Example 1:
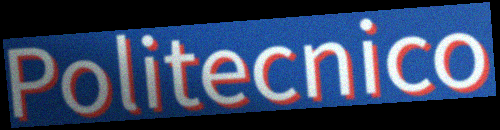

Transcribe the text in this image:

Politecnico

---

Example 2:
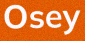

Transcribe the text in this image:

Osey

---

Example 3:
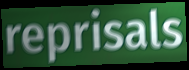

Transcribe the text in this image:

reprisals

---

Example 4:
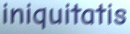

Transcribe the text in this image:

iniquitatis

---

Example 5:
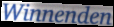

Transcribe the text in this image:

Winnenden